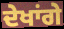
ਦੇਖਾਂਗੇ